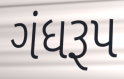
ગંધરૂપ